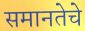
समानतेचे